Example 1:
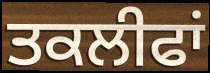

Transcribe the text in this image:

ਤਕਲੀਫਾਂ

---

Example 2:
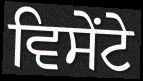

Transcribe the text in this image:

ਵਿਸੇਂਟੇ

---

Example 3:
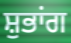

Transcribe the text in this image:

ਸ਼ੁਭਾਂਗ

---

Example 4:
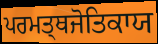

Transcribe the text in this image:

ਪਰਮਤ੍ਥਜੋਤਿਕਾਯ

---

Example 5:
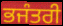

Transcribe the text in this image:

ਭਜੰਤਰੀ